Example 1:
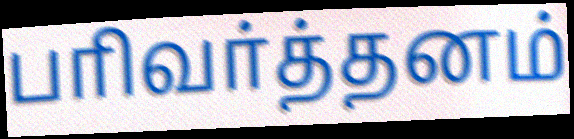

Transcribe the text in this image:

பரிவர்த்தனம்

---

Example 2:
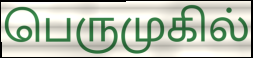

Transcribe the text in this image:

பெருமுகில்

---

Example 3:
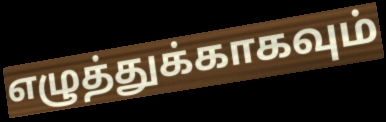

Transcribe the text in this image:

எழுத்துக்காகவும்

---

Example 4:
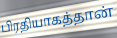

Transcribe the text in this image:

பிரதியாகத்தான்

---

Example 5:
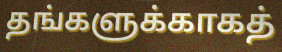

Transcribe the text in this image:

தங்களுக்காகத்